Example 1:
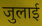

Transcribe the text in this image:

जुलाई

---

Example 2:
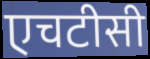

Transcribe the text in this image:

एचटीसी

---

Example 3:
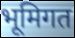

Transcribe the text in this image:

भूमिगत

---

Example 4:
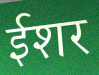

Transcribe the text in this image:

ईशर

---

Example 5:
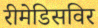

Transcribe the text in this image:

रीमेडिसविर